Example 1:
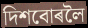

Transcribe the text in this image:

দিশবোৰলৈ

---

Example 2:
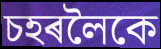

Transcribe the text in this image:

চহৰলৈকে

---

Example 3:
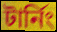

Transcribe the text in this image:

টাৰ্নিং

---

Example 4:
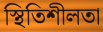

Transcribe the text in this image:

স্থিতিশীলতা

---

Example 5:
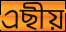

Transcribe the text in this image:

এছীয়